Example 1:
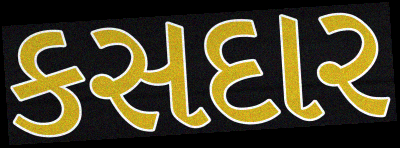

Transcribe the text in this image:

કસદાર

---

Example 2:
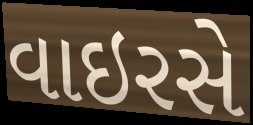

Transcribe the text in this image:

વાઇરસે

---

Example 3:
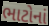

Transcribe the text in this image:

ભાટોનાં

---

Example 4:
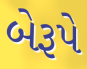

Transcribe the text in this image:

બેરૂપે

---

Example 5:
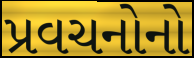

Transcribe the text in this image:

પ્રવચનોનો